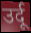
उर्दू